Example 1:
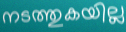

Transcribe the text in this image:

നടത്തുകയില്ല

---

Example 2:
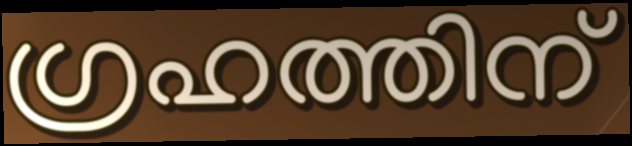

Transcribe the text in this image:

ഗ്രഹത്തിന്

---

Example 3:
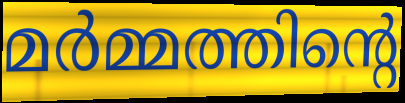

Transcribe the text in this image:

മർമ്മത്തിന്റെ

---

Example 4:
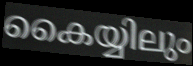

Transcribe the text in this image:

കൈയ്യിലും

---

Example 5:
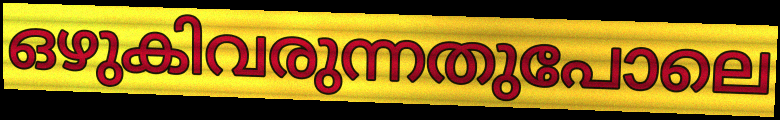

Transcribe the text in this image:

ഒഴുകിവരുന്നതുപോലെ